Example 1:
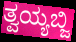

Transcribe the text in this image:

ತ್ವಯ್ಯಬ್ಜಿ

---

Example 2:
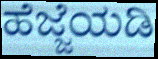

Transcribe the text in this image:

ಹೆಜ್ಜೆಯಡಿ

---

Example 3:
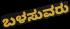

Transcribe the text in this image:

ಬಳಸುವರು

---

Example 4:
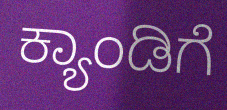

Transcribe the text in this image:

ಕ್ಯಾಂಡಿಗೆ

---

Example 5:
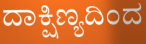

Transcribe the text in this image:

ದಾಕ್ಷಿಣ್ಯದಿಂದ